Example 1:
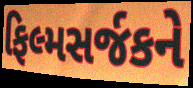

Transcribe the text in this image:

ફિલ્મસર્જકને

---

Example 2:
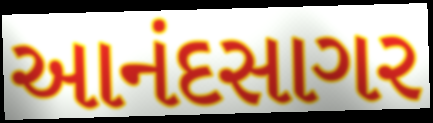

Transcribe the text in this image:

આનંદસાગર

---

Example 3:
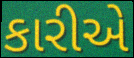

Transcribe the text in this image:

કારીએ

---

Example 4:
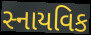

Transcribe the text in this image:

સ્નાયવિક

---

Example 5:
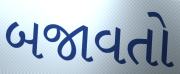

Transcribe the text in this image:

બજાવતો